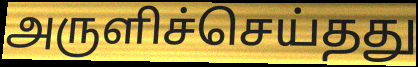
அருளிச்செய்தது